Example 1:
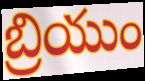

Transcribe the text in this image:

బ్రియుం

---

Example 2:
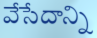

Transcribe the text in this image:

వేసేదాన్ని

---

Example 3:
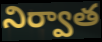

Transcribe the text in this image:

నిర్వాత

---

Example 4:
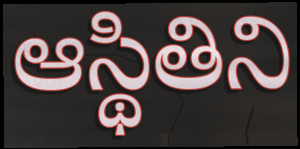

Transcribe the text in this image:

ఆస్థితిని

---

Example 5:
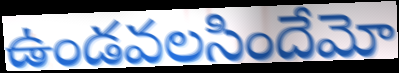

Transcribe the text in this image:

ఉండవలసిందేమో